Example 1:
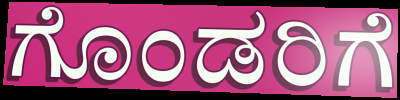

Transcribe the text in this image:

ಗೊಂಡರಿಗೆ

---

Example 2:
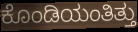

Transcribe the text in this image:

ಕೊಂಡಿಯಂತಿತ್ತು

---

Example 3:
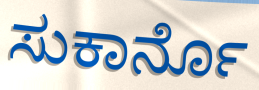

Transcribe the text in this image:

ಸುಕಾರ್ನೊ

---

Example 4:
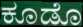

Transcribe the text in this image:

ಕೂಡೊ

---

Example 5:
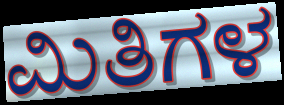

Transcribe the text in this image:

ಮಿತಿಗಳ